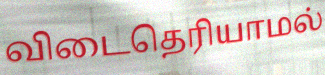
விடைதெரியாமல்